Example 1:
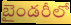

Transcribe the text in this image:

బైండరీలో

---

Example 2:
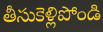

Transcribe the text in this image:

తీసుకెళ్లిపోండి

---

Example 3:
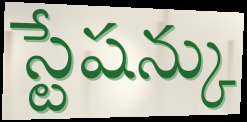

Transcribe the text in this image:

స్టేషన్కు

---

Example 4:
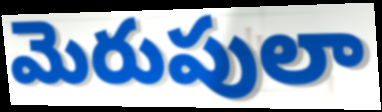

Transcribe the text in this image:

మెరుపులా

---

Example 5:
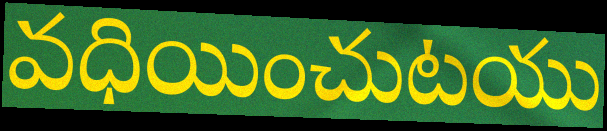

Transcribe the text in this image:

వధియించుటయు